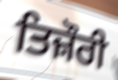
ਤਿਜ਼ੌਰੀ